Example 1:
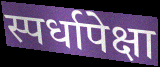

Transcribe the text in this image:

स्पर्धापेक्षा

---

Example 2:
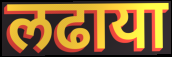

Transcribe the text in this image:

लढाया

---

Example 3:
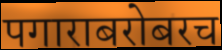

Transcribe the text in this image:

पगाराबरोबरच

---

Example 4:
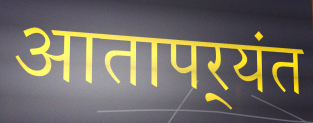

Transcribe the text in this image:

आतापर्यंत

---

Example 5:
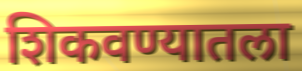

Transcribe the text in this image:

शिकवण्यातला